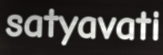
satyavati